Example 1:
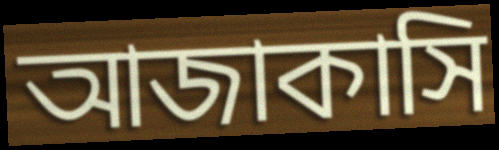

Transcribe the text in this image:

আজাকাসি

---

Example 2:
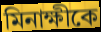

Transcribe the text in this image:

মিনাক্ষীকে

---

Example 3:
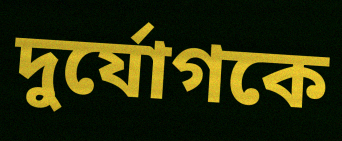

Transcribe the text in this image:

দুর্যোগকে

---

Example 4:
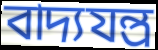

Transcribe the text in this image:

বাদ্যযন্ত্র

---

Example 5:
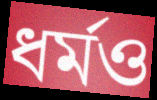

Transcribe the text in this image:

ধর্মও